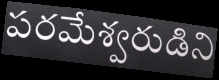
పరమేశ్వరుడిని